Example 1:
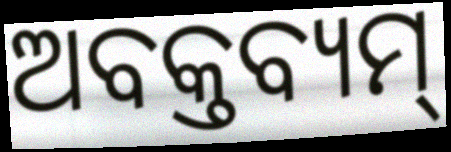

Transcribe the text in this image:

ଅବକ୍ତବ୍ୟମ୍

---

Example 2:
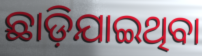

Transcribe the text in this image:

ଛାଡ଼ିଯାଇଥିବା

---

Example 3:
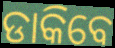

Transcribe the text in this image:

ଡାକିବେ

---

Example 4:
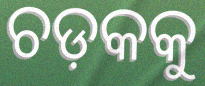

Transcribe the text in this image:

ଚଡ଼କକୁ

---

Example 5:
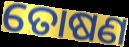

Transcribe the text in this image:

ତୋଷଣ